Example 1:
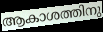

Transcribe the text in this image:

ആകാശത്തിനു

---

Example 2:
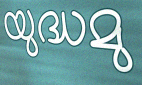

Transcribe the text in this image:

യുദ്ധമു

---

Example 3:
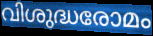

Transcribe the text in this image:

വിശുദ്ധരോമം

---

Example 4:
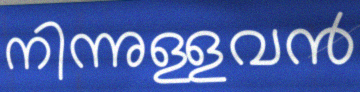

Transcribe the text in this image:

നിന്നുള്ളവൻ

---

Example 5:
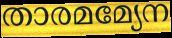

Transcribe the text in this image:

താരമമ്യേന